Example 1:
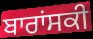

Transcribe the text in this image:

ਬਾਰਾਂਸਕੀ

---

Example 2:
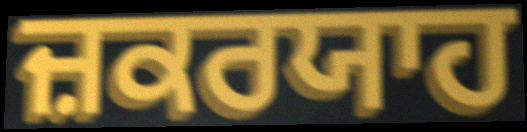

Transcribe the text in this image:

ਜ਼ਕਰਯਾਹ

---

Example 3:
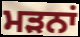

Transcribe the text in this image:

ਮੜਨਾਂ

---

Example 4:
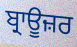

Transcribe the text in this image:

ਬ੍ਰਾਊਜ਼ਰ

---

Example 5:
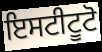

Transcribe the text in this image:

ਇਸਟੀਟੂਟੋ